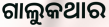
ଗାଲୁକଥାର